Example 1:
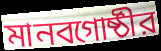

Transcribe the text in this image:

মানবগোষ্ঠীর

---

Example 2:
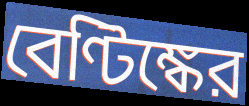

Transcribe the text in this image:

বেণ্টিঙ্কের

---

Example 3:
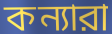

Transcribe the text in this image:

কন্যারা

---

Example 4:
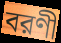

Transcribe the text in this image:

বরণী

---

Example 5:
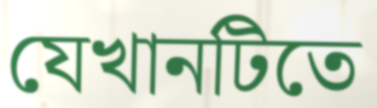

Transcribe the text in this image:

যেখানটিতে